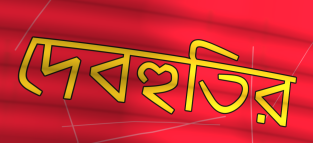
দেবহুতির